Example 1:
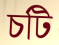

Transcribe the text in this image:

চটি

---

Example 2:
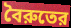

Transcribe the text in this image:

বৈরুতের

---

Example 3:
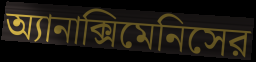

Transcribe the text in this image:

অ্যানাক্সিমেনিসের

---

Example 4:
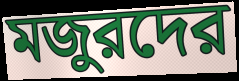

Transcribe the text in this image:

মজুরদের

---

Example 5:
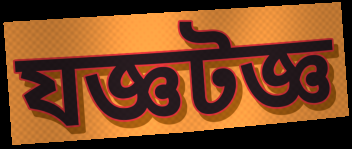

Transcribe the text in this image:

যজ্ঞটজ্ঞ